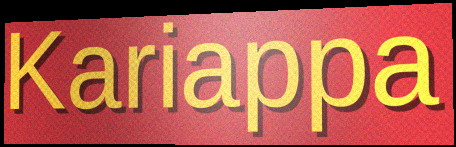
Kariappa